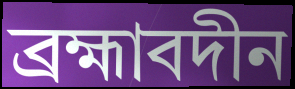
ব্ৰহ্মাবদীন